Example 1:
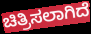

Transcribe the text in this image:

ಚಿತ್ರಿಸಲಾಗಿದೆ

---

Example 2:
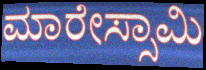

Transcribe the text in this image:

ಮಾರೇಸ್ಸಾಮಿ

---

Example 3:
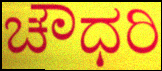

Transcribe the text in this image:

ಚೌಧರಿ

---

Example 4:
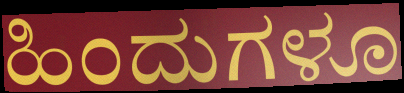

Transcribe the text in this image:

ಹಿಂದುಗಳೂ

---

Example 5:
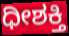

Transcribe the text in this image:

ಧೀಶಕ್ತಿ